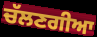
ਚੱਲਣਗੀਆ